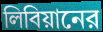
লিবিয়ানের